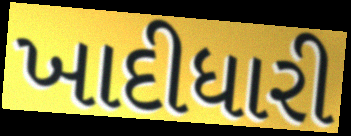
ખાદીધારી